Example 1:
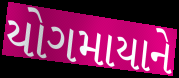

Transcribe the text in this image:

યોગમાયાને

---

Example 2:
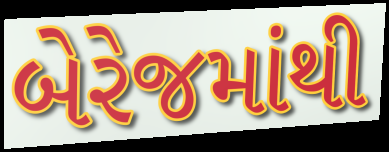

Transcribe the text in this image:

બેરેજમાંથી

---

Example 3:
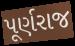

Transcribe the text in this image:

પૂર્ણરાજ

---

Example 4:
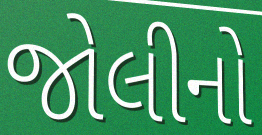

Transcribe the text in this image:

જોલીનો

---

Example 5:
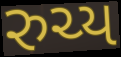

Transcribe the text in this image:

રુચ્ય